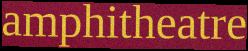
amphitheatre